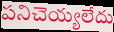
పనిచెయ్యలేదు